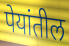
पेयांतील